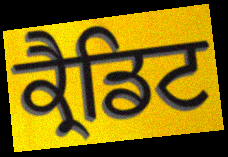
ਕ੍ਰੈਡਿਟ